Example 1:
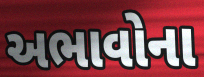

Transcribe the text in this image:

અભાવોના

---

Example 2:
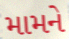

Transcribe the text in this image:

મામને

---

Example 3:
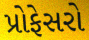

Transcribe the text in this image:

પ્રોફેસરો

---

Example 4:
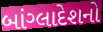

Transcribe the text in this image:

બાંગ્લાદેશનો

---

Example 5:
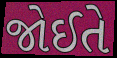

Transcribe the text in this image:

જોઈતે